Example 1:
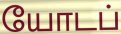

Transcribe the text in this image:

யோடப்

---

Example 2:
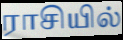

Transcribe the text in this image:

ராசியில்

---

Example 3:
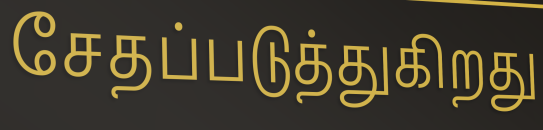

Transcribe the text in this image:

சேதப்படுத்துகிறது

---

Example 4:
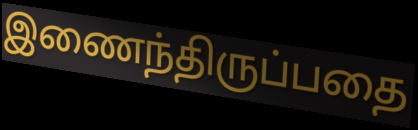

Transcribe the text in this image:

இணைந்திருப்பதை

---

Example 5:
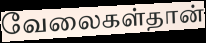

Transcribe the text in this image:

வேலைகள்தான்